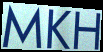
MKH